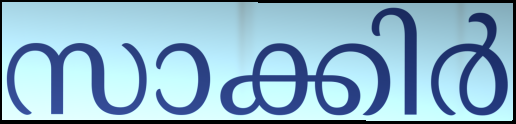
സാക്കിർ